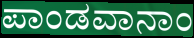
ಪಾಂಡವಾನಾಂ